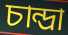
চান্দ্রা